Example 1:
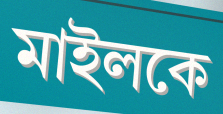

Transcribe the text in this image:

মাইলকে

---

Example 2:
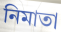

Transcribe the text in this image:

নিমাতা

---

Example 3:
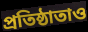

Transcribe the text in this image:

প্রতিষ্ঠাতাও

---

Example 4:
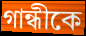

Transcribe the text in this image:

গান্ধীকে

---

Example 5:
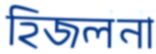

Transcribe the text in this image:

হিজলনা